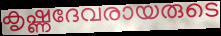
കൃഷ്ണദേവരായരുടെ